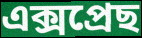
এক্সপ্ৰেছ